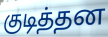
குடித்தன